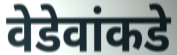
वेडेवांकडे